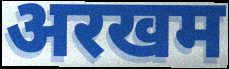
अरखम